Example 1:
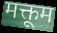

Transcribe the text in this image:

मक्तूम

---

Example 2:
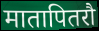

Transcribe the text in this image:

मातापितरौ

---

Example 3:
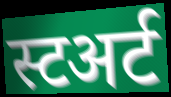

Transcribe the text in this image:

स्टअर्ट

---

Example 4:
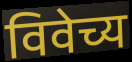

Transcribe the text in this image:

विवेच्य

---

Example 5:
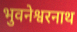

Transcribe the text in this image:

भुवनेश्वरनाथ